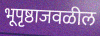
भूपृष्ठाजवळील